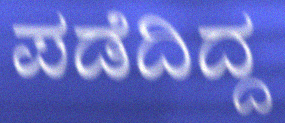
ಪಡೆದಿದ್ದ